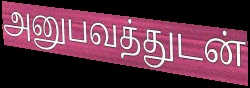
அனுபவத்துடன்